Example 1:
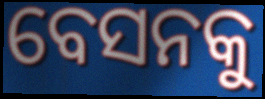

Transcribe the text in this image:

ବେସନକୁ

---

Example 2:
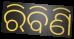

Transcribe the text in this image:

ରିବିଣି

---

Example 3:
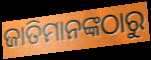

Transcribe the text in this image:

ଜାତିମାନଙ୍କଠାରୁ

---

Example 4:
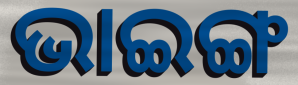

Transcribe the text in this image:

ଭାଇଙ୍ଗ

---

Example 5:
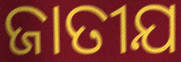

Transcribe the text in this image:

ଜାତୀଯ